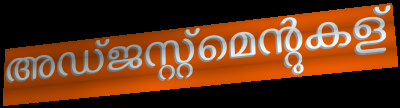
അഡ്ജസ്റ്റ്മെന്റുകള്